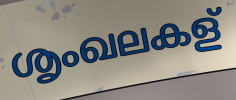
ശൃംഖലകള്